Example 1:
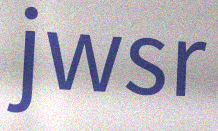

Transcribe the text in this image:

jwsr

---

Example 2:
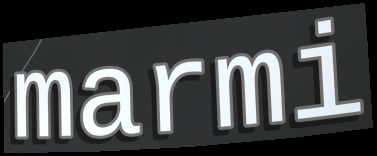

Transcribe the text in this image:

marmi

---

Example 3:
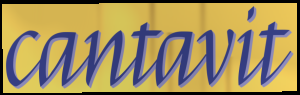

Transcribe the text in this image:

cantavit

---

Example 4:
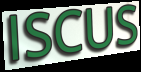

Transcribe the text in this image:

ISCUS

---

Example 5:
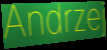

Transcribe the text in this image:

Andrzej